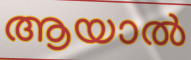
ആയാൽ